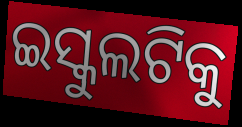
ଇସ୍କୁଲଟିକୁ